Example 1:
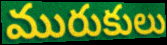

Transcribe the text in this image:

మురుకులు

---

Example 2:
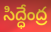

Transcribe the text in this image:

సిద్ధేంద్ర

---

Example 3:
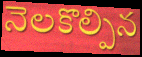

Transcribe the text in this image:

నెలకొల్పిన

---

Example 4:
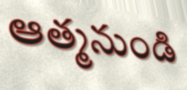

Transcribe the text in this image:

ఆత్మనుండి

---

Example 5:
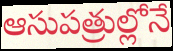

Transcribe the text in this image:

ఆసుపత్రుల్లోనే